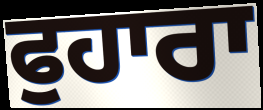
ਫੁਹਾਰਾ